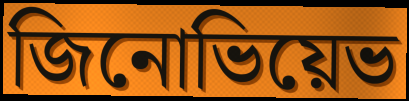
জিনোভিয়েভ